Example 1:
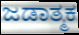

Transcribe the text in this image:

ಜಡಾತ್ಮಕ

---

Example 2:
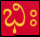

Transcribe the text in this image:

ಭಿಃ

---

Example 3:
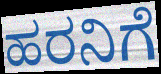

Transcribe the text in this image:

ಹರನಿಗೆ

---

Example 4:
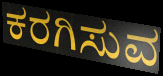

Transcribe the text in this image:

ಕರಗಿಸುವ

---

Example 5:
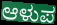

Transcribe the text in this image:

ಆಳುಪ